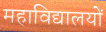
महाविद्यालयों